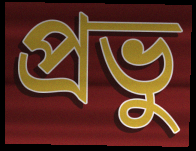
প্রভু